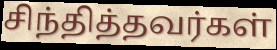
சிந்தித்தவர்கள்